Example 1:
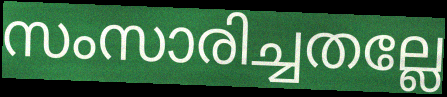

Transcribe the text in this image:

സംസാരിച്ചതല്ലേ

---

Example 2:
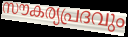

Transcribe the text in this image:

സൗകര്യപ്രദവും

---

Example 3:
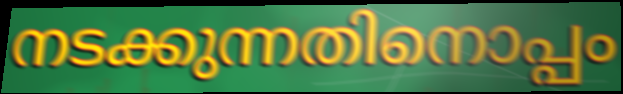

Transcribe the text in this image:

നടക്കുന്നതിനൊപ്പം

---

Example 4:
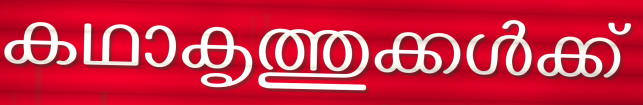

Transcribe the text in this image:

കഥാകൃത്തുക്കൾക്ക്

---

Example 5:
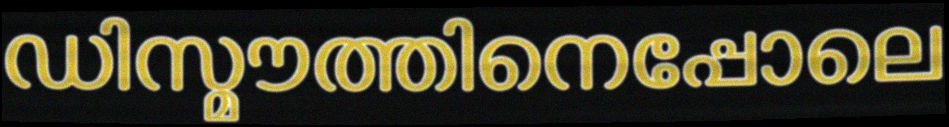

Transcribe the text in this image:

ഡിസ്മൗത്തിനെപ്പോലെ